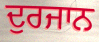
ਦੁਰਜਾਨ